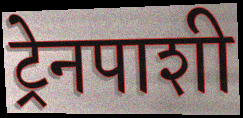
ट्रेनपाशी